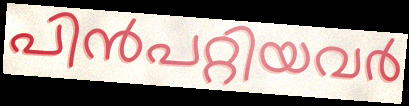
പിൻപറ്റിയവർ